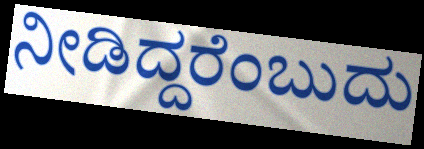
ನೀಡಿದ್ದರೆಂಬುದು